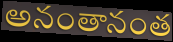
అనంతానంత